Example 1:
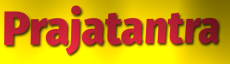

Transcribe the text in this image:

Prajatantra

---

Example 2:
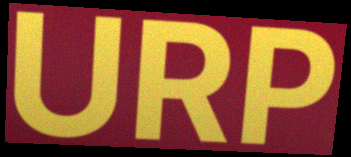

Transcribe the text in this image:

URP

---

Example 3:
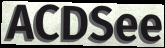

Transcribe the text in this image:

ACDSee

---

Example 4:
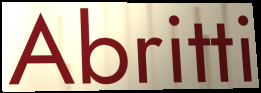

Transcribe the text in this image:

Abritti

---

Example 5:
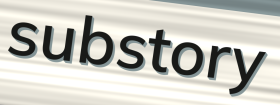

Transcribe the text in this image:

substory